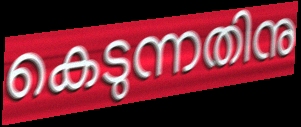
കെടുന്നതിനു